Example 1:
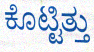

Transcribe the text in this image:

ಕೊಟ್ಟಿತ್ತು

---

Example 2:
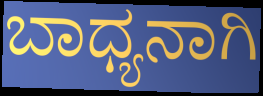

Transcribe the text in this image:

ಬಾಧ್ಯನಾಗಿ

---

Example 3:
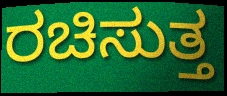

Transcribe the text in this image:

ರಚಿಸುತ್ತ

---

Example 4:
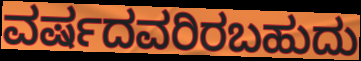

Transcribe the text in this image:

ವರ್ಷದವರಿರಬಹುದು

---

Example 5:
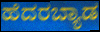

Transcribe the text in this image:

ಹೆದರಬ್ಯಾಡ